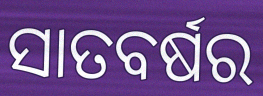
ସାତବର୍ଷର